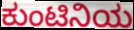
ಕುಂಟಿನಿಯ